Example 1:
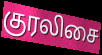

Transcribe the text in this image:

குரலிசை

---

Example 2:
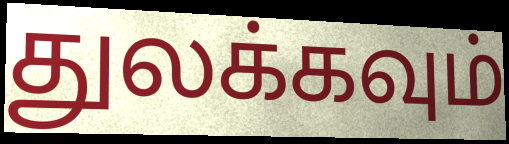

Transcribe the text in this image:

துலக்கவும்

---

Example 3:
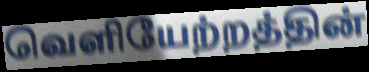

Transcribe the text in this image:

வெளியேற்றத்தின்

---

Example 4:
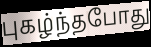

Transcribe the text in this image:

புகழ்ந்தபோது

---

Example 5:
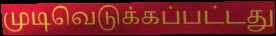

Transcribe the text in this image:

முடிவெடுக்கப்பட்டது